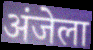
अंजेला